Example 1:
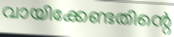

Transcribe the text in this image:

വായിക്കേണ്ടതിന്റെ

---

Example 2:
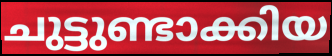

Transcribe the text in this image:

ചുട്ടുണ്ടാക്കിയ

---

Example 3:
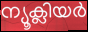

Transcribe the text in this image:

ന്യൂക്ലിയർ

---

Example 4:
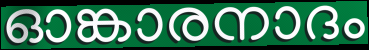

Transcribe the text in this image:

ഓങ്കാരനാദം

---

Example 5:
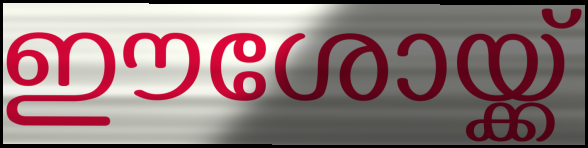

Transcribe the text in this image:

ഈശോയ്ക്ക്